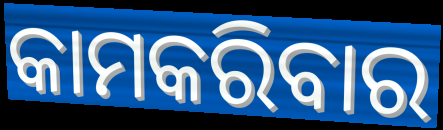
କାମକରିବାର